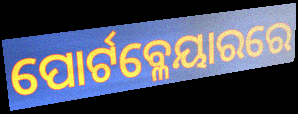
ପୋର୍ଟବ୍ଳେୟାରରେ